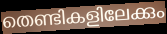
തെണ്ടികളിലേക്കും